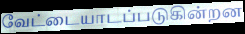
வேட்டையாடப்படுகின்றன